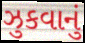
ઝુકવાનું